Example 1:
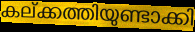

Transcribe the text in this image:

കല്ക്കത്തിയുണ്ടാക്കി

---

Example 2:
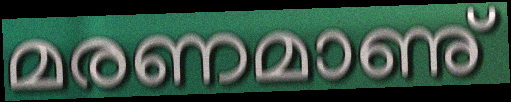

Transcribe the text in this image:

മരണമാണു്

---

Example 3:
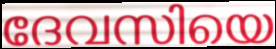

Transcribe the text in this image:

ദേവസിയെ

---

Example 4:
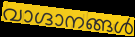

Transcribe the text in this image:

വാഗ്ദാനങ്ങൾ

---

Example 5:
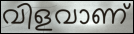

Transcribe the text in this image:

വിളവാണ്